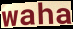
waha